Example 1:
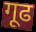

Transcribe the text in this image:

गूढ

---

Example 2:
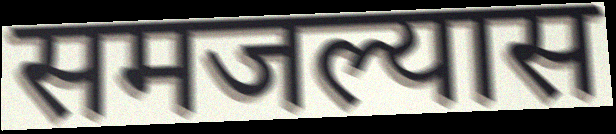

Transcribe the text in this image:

समजल्यास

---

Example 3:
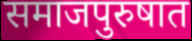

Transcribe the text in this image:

समाजपुरुषात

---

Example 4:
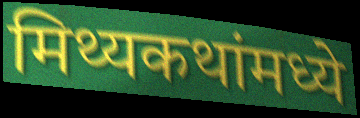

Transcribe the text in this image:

मिथ्यकथांमध्ये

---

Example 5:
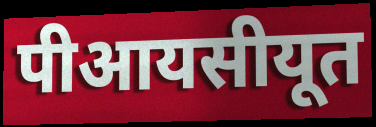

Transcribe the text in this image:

पीआयसीयूत